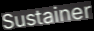
Sustainer